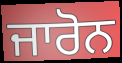
ਜਾਰੋਨ